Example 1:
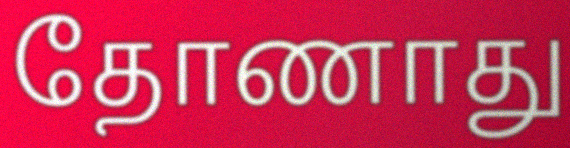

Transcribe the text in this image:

தோணாது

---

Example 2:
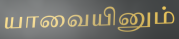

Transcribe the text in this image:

யாவையினும்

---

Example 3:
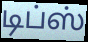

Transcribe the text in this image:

டிப்ஸ்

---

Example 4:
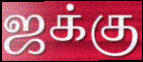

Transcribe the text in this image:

ஜக்கு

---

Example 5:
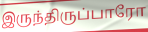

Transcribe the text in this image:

இருந்திருப்பாரோ